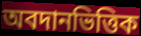
অবদানভিত্তিক